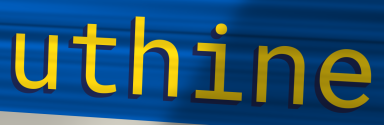
uthine